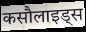
कसौलाइड्स